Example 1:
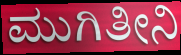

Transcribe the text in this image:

ಮುಗಿತೀನಿ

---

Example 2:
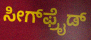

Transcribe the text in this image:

ಸೀಗ್‌ಫ್ರೈಡ್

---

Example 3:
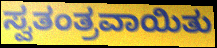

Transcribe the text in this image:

ಸ್ವತಂತ್ರವಾಯಿತು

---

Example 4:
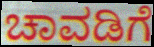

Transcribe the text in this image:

ಚಾವಡಿಗೆ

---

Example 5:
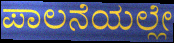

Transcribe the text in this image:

ಪಾಲನೆಯಲ್ಲೇ